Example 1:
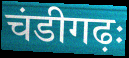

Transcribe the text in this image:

चंडीगढ़ः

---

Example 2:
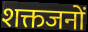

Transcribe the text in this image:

शक्तजनों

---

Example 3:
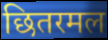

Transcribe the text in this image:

छितरमल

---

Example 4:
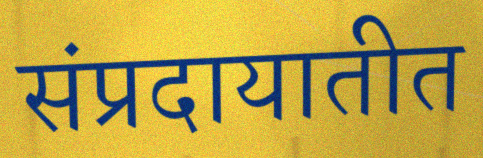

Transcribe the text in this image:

संप्रदायातीत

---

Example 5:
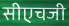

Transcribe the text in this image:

सीएचजी